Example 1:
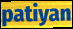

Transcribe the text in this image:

patiyan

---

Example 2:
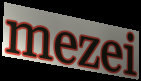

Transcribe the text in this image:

mezei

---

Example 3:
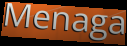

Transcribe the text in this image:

Menaga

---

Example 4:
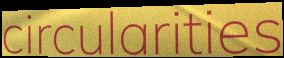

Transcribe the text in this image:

circularities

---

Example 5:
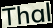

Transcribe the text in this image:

Thal